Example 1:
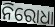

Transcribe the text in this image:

ନିରୋଧା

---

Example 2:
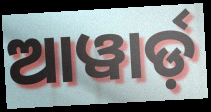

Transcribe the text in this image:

ଆୱାର୍ଡ଼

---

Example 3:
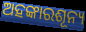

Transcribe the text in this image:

ଅହଙ୍କାରଶୂନ୍ୟ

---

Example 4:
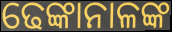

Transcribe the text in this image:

ଢେଙ୍କାନାଳଙ୍କ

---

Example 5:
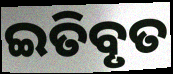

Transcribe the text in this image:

ଇତିବୃତ